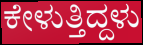
ಕೇಳುತ್ತಿದ್ದಳು